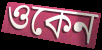
ওকেন